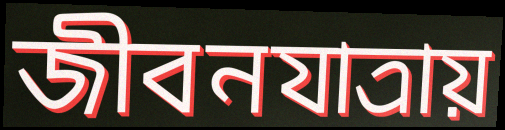
জীবনযাত্রায়